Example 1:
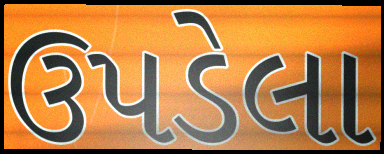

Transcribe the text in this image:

ઉપડેલા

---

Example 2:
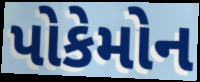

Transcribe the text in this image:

પોકેમોન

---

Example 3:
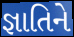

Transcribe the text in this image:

જ્ઞાતિને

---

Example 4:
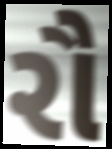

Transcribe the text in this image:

રૌ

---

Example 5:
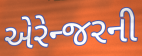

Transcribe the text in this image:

એરેન્જરની